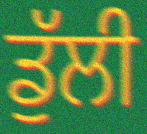
ਡੁੱਲੀ